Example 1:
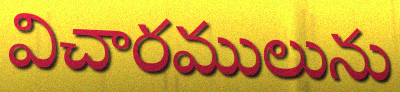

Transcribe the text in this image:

విచారములును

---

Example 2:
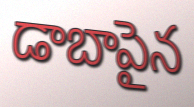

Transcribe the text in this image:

డాబాపైన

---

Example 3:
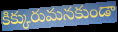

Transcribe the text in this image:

కిక్కురుమనకుండా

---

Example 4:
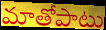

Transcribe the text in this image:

మాతోపాటు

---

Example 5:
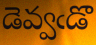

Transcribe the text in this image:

డెవ్వఁడొ